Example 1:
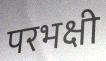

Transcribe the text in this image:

परभक्षी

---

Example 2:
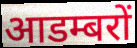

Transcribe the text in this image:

आडम्बरों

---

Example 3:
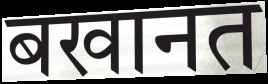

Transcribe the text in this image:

बखानत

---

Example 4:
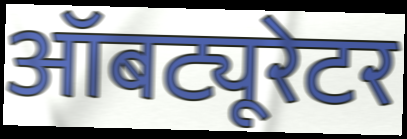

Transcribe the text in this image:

ऑबट्यूरेटर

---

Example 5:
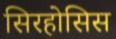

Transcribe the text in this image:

सिरहोसिस